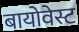
बायोवेस्ट